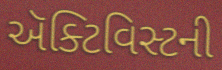
ઍક્ટિવિસ્ટની